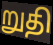
றுதி